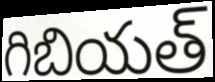
గిబియత్